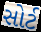
સોર્ટ